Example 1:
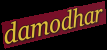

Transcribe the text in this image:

damodhar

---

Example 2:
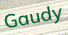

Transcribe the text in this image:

Gaudy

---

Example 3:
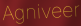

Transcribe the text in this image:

Agniveer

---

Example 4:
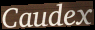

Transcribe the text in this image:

Caudex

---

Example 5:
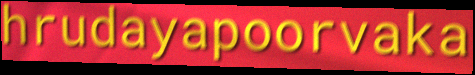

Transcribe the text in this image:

hrudayapoorvaka